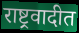
राष्ट्रवादीत